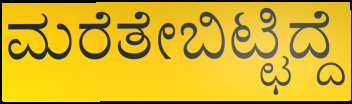
ಮರೆತೇಬಿಟ್ಟಿದ್ದೆ